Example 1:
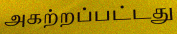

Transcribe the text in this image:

அகற்றப்பட்டது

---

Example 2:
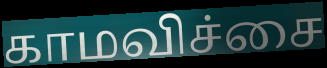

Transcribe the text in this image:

காமவிச்சை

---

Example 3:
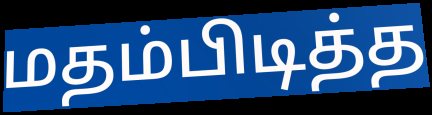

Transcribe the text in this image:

மதம்பிடித்த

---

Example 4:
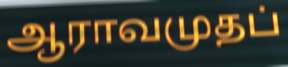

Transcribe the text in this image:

ஆராவமுதப்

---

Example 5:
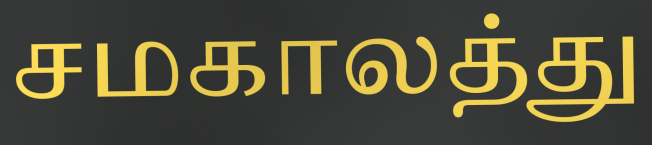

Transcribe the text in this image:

சமகாலத்து